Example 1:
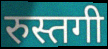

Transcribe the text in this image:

रुस्तगी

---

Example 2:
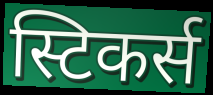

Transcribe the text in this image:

स्टिकर्स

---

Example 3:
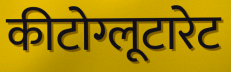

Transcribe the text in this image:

कीटोग्लूटारेट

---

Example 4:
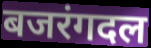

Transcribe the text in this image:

बजरंगदल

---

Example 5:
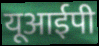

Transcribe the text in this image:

यूआईपी